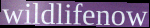
wildlifenow